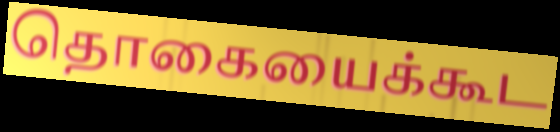
தொகையைக்கூட